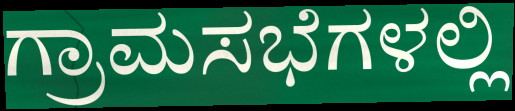
ಗ್ರಾಮಸಭೆಗಳಲ್ಲಿ